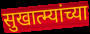
सुखात्म्यांच्या